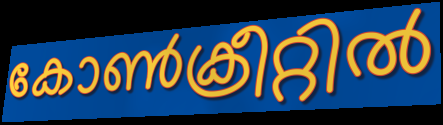
കോൺക്രീറ്റിൽ